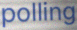
polling